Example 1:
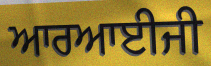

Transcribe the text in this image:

ਆਰਆਈਜੀ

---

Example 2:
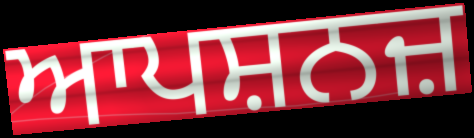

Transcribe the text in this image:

ਆਪਸ਼ਨਜ਼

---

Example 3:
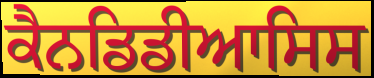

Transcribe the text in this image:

ਕੈਨਡਿਡੀਆਸਿਸ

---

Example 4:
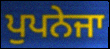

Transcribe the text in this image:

ਪੁਪਨੇਜਾ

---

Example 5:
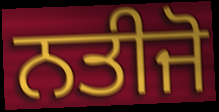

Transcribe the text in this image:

ਨਤੀਜੋ